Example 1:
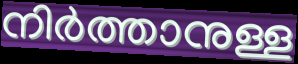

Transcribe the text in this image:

നിർത്താനുള്ള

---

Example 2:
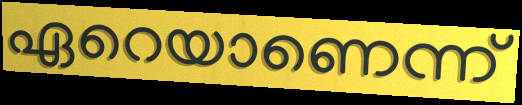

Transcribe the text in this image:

ഏറെയാണെന്ന്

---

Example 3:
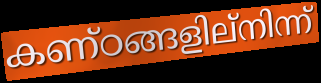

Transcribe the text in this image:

കണ്ഠങ്ങളില്നിന്ന്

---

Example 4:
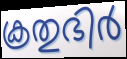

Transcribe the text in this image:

ക്രതുഭിർ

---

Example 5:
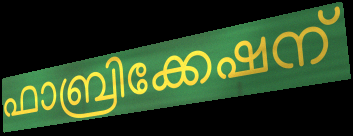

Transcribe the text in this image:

ഫാബ്രിക്കേഷന്